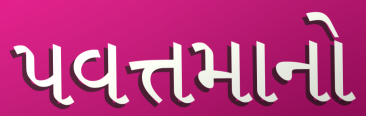
પવત્તમાનો